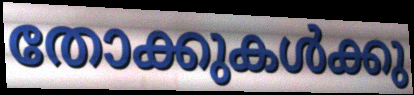
തോക്കുകൾക്കു